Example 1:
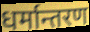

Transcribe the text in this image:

धर्मान्तरण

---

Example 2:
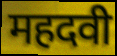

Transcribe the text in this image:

महदवी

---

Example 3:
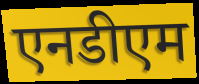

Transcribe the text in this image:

एनडीएम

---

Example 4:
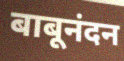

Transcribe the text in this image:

बाबूनंदन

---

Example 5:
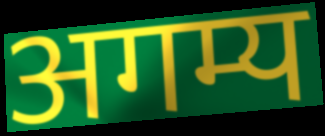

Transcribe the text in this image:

अगम्य